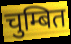
चुम्बित